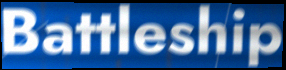
Battleship